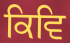
ਕਿਵਿ